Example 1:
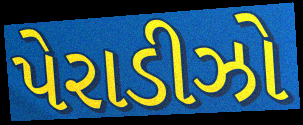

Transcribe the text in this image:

પેરાડીઝો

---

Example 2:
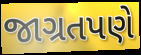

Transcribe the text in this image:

જાગ્રતપણે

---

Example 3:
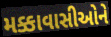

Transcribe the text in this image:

મક્કાવાસીઓને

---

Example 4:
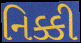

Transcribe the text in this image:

નિક્કી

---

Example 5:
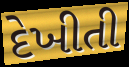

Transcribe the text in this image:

દેખીતી